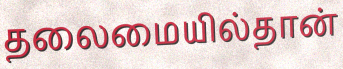
தலைமையில்தான்